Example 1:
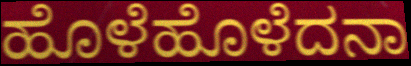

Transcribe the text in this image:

ಹೊಳೆಹೊಳೆದನಾ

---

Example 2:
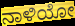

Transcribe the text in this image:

ನಾಳಿಯೋ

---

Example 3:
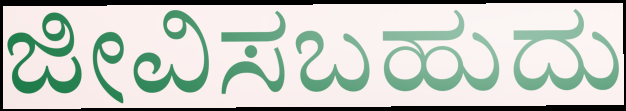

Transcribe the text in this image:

ಜೀವಿಸಬಹುದು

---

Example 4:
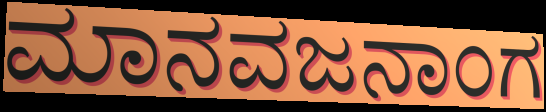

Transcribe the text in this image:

ಮಾನವಜನಾಂಗ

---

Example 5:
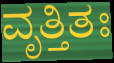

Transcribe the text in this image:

ವೃತ್ತಿತಃ